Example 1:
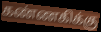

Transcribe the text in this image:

கண்ணகிக்கு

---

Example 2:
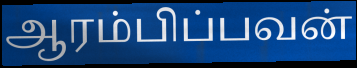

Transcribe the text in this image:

ஆரம்பிப்பவன்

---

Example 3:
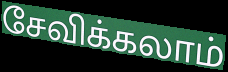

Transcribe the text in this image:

சேவிக்கலாம்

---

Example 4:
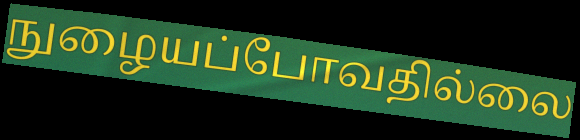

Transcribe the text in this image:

நுழையப்போவதில்லை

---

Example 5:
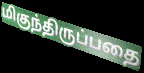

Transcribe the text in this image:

மிகுந்திருப்பதை